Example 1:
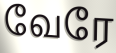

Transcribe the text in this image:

வேரே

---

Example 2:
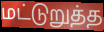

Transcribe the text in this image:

மட்டுறுத்த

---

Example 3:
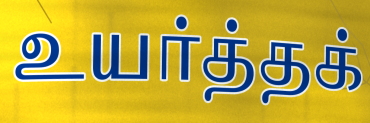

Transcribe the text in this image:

உயர்த்தக்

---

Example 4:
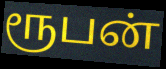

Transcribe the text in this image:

ரூபன்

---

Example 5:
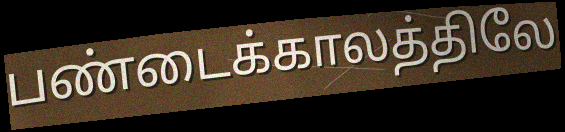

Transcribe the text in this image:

பண்டைக்காலத்திலே